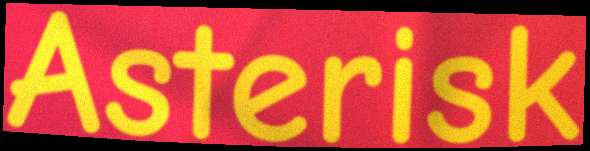
Asterisk